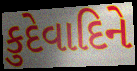
કુદેવાદિને